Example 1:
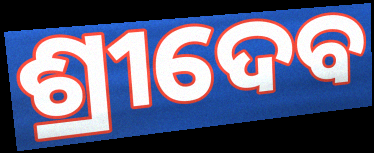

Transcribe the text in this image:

ଶ୍ରୀଦେବ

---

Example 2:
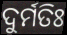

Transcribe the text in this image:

ଦୁର୍ମତିଃ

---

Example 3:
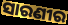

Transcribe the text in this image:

ସାରଣୀର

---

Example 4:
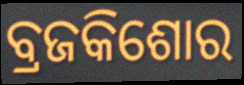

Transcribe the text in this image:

ବ୍ରଜକିଶୋର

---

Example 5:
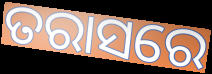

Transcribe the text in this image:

ତରାସରେ